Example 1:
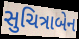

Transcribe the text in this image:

સુચિત્રાબેન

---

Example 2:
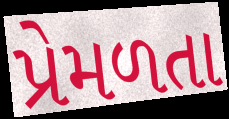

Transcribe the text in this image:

પ્રેમળતા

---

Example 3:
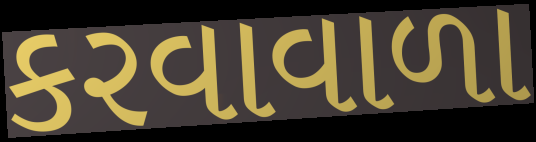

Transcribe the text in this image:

કરવાવાળા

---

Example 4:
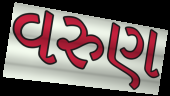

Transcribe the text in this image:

વરુણ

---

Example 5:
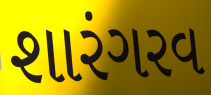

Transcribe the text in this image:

શારંગરવ